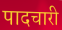
पादचारी